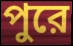
পুরে